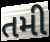
તમી